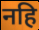
नहि